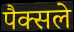
पैक्सले